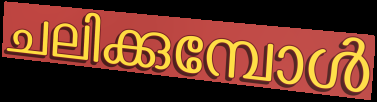
ചലിക്കുമ്പോൾ